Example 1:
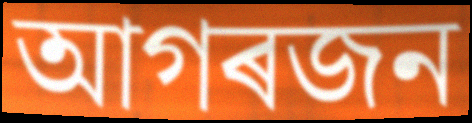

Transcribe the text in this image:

আগৰজন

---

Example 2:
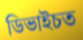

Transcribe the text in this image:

ডিভাইচত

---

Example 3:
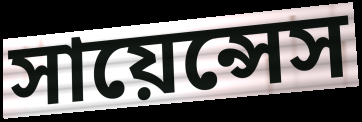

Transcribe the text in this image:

সায়েন্সেস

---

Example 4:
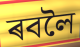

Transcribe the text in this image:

ৰবলৈ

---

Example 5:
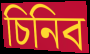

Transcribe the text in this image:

চিনিব